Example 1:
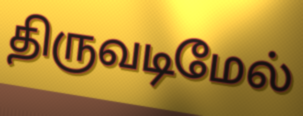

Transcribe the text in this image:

திருவடிமேல்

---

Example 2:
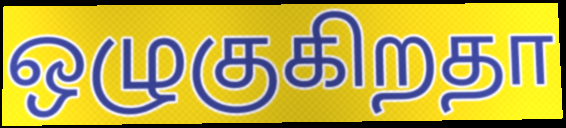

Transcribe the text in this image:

ஒழுகுகிறதா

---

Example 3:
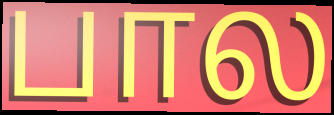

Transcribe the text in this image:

பால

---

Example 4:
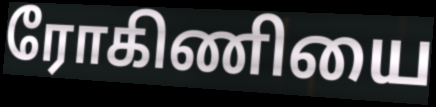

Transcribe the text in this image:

ரோகிணியை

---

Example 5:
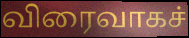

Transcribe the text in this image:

விரைவாகச்